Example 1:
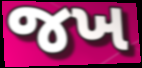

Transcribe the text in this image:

જખ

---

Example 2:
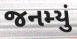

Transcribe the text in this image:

જનમ્યું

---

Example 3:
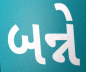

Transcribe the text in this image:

બન્ને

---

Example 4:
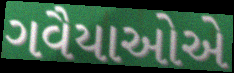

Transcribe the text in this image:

ગવૈયાઓએ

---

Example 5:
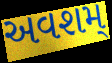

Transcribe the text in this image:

અવશમ્